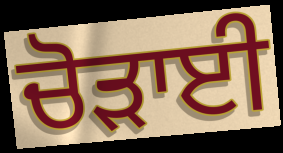
ਚੋੜਾਈ